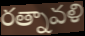
రత్నావళి